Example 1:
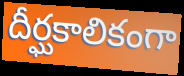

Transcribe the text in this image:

దీర్ఘకాలికంగా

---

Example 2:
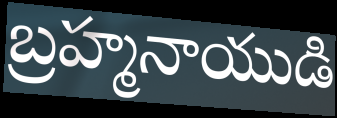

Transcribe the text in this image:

బ్రహ్మనాయుడి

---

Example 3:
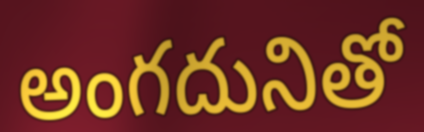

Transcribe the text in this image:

అంగదునితో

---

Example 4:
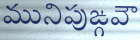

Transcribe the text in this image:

మునిపుఙ్గవౌ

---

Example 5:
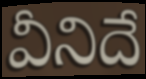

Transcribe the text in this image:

వీనిదే